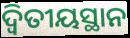
ଦ୍ୱିତୀୟସ୍ଥାନ